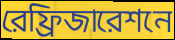
রেফ্রিজারেশনে